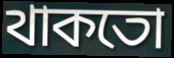
থাকতো